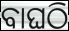
ବାଘଠି